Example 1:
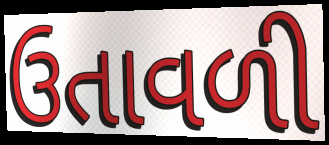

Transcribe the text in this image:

ઉતાવળી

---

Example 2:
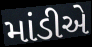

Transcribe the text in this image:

માંડીએ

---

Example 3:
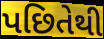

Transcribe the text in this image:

પછિતેથી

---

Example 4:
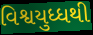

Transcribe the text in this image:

વિશ્વયુધ્ધથી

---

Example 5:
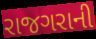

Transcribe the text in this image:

રાજગરાની